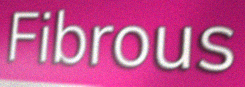
Fibrous